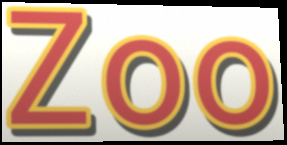
Zoo